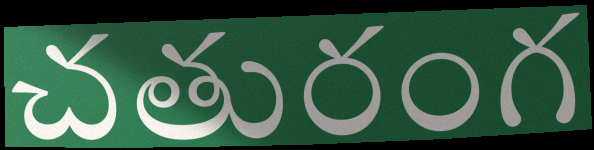
చతురంగ